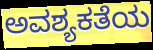
ಅವಶ್ಯಕತೆಯ